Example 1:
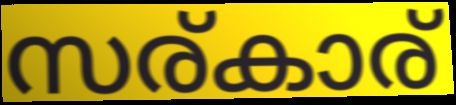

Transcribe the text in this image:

സര്കാര്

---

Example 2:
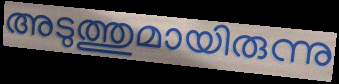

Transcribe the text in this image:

അടുത്തുമായിരുന്നു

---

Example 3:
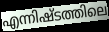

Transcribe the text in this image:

എന്നിഷ്ടത്തിലെ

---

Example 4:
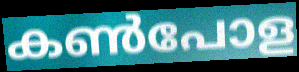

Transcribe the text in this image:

കൺപോള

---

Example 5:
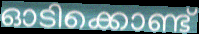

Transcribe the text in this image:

ഓടിക്കൊണ്ട്